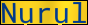
Nurul